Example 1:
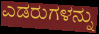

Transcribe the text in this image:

ಎಡರುಗಳನ್ನು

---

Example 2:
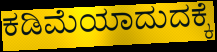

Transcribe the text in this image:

ಕಡಿಮೆಯಾದುದಕ್ಕೆ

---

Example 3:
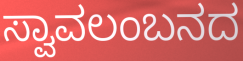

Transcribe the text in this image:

ಸ್ವಾವಲಂಬನದ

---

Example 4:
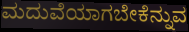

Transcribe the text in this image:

ಮದುವೆಯಾಗಬೇಕೆನ್ನುವ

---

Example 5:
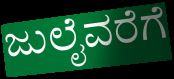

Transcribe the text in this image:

ಜುಲೈವರೆಗೆ